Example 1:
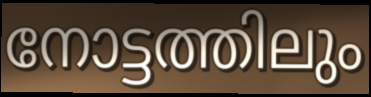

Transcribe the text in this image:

നോട്ടത്തിലും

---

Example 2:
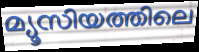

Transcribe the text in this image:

മ്യൂസിയത്തിലെ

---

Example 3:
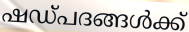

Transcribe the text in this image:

ഷഡ്പദങ്ങൾക്ക്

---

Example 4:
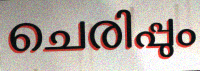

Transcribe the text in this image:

ചെരിപ്പും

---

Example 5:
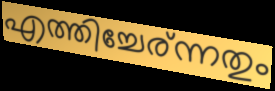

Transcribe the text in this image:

എത്തിച്ചേര്ന്നതും